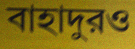
বাহাদুরও